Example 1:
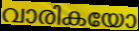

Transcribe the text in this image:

വാരികയോ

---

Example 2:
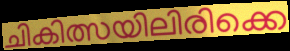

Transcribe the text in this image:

ചികിത്സയിലിരിക്കെ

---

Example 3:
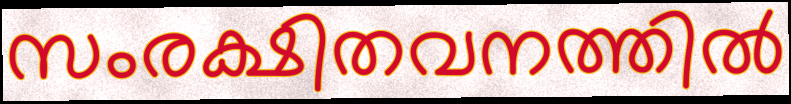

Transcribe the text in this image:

സംരക്ഷിതവനത്തിൽ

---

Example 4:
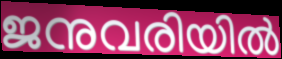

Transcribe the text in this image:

ജനുവരിയിൽ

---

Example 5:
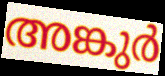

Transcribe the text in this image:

അങ്കുർ